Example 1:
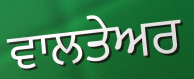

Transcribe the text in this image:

ਵਾਲਤੇਅਰ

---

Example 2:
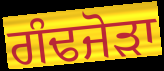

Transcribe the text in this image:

ਗੰਢਜੋੜਾ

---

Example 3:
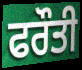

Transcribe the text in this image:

ਫਰੌਤੀ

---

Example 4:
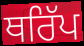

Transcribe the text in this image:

ਥਰਿੱਪ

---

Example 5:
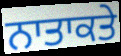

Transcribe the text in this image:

ਨਾਤਾਕਤੇ